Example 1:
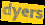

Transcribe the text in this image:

dyers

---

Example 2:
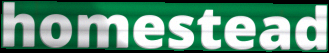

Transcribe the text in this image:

homestead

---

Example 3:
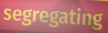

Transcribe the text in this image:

segregating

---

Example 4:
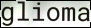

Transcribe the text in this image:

glioma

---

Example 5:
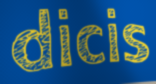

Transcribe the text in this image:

dicis